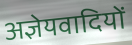
अज्ञेयवादियों